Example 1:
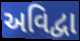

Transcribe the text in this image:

અવિદ્વા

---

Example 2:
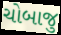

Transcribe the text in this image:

ચોબાજુ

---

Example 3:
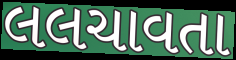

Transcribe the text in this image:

લલચાવતા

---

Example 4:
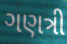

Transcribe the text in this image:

ગણત્રી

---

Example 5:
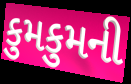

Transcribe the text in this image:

કુમકુમની